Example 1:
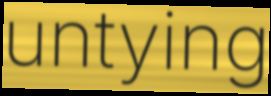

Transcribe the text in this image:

untying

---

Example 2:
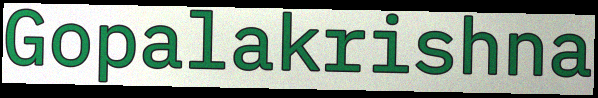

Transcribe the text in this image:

Gopalakrishna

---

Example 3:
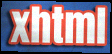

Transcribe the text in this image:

xhtml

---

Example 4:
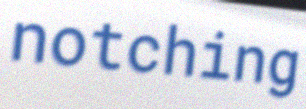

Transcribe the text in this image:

notching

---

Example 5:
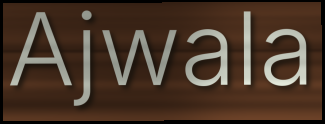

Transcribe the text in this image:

Ajwala